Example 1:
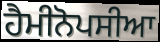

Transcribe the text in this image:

ਹੈਮੀਨੋਪਸੀਆ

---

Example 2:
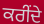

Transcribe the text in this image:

ਕਰੀਂਦੇ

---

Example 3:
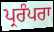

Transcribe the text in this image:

ਪ੍ਰਰੰਪਰਾ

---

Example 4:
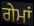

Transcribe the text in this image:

ਗੇਮਾਂ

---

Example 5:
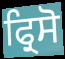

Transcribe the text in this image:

ਫ੍ਰਿਸੋ